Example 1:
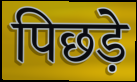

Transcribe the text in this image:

पिछड़े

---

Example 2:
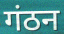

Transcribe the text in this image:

गंठन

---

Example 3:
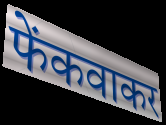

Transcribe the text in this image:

फेंकवाकर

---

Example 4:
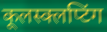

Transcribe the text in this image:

कूलस्क्लप्टिंग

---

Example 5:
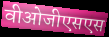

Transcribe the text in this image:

वीओजीएसएस